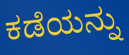
ಕಡೆಯನ್ನು